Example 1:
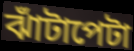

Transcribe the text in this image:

ঝাঁটাপেটা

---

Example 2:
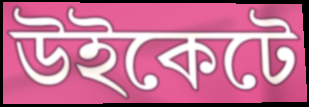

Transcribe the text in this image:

উইকেটে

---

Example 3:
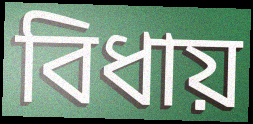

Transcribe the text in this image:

বিধায়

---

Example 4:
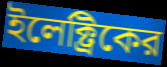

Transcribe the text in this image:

ইলেক্ট্রিকের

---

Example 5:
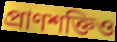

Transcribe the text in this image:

প্রাণশক্তিও